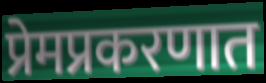
प्रेमप्रकरणात